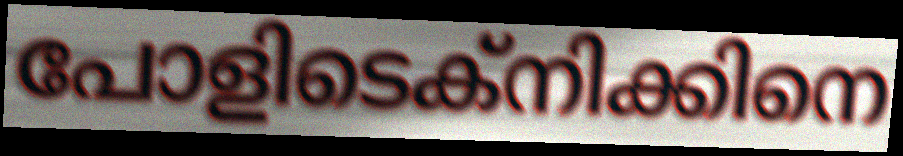
പോളിടെക്നിക്കിനെ